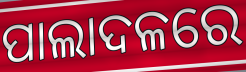
ପାଲାଦଳରେ